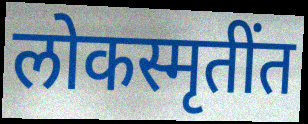
लोकस्मृतींत